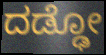
ದಡ್ಢೋ